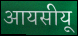
आयसीयू